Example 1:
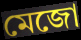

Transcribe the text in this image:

মেজো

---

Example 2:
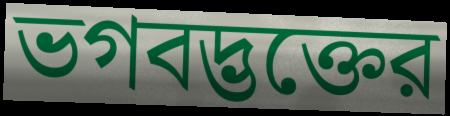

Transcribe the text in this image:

ভগবদ্ভক্তের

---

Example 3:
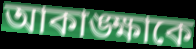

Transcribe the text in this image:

আকাঙ্ক্ষাকে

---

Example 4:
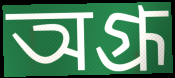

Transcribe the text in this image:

অগ্রূ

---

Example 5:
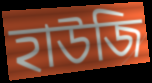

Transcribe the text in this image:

হাউজি